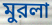
মুরলা